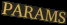
PARAMS